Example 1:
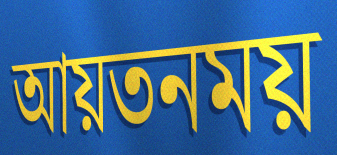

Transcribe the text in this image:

আয়তনময়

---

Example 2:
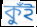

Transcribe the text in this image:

কুঁই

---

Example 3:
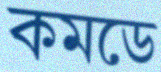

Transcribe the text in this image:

কমডে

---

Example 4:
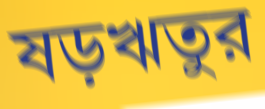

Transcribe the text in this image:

ষড়ঋতুর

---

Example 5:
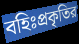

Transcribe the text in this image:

বহিঃপ্রকৃতির